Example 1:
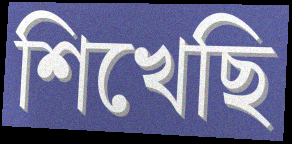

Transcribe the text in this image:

শিখেছি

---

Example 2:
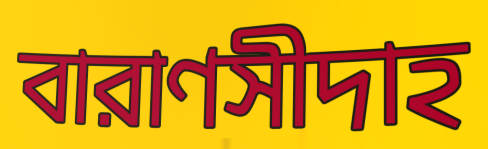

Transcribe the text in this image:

বারাণসীদাহ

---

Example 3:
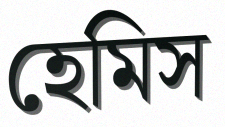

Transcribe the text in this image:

হেমিস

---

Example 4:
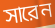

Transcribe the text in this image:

সারেন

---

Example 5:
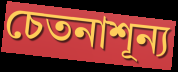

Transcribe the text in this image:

চেতনাশূন্য